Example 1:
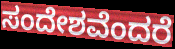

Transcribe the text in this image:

ಸಂದೇಶವೆಂದರೆ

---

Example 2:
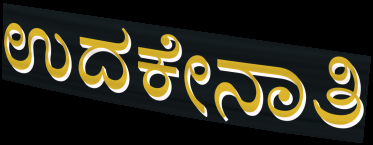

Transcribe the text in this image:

ಉದಕೇನಾತಿ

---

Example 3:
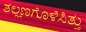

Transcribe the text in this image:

ತಲ್ಲಣಗೊಳಿಸಿತ್ತು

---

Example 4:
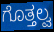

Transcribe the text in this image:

ಗೊತ್ತಲ್ವ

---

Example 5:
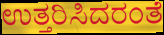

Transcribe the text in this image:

ಉತ್ತರಿಸಿದರಂತೆ